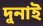
দুনাই